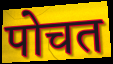
पोचत